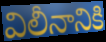
విలీనానికి